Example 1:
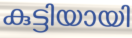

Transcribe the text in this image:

കുട്ടിയായി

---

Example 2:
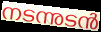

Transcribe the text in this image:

നടന്നുടൻ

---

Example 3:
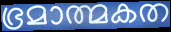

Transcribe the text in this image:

ഭ്രമാത്മകത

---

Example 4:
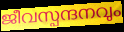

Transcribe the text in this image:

ജീവസ്പന്ദനവും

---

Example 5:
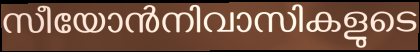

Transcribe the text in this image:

സീയോൻനിവാസികളുടെ